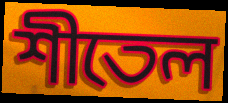
শীতেল